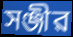
সঞ্জীৱ